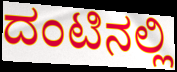
ದಂಟಿನಲ್ಲಿ